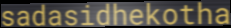
sadasidhekotha